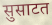
सुसाटत